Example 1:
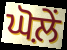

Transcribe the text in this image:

ਘੋਲ਼ੇਂ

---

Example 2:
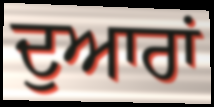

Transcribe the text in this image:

ਦੁਆਰਾਂ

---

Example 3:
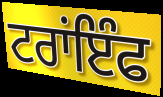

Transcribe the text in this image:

ਟਰਾਂਇੰਫ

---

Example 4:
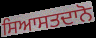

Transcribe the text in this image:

ਸਿਆਸਤਦਾਨੋ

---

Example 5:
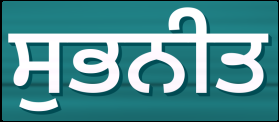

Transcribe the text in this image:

ਸੁਭਨੀਤ